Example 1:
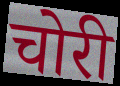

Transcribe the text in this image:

चोरी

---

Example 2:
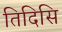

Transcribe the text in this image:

तिदिसि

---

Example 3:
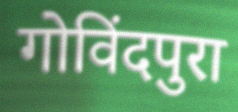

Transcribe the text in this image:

गोविंदपुरा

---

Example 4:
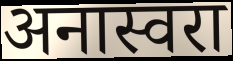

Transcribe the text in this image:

अनास्वरा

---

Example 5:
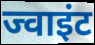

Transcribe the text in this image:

ज्वाइंट